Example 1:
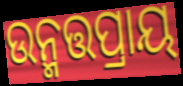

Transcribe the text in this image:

ଉନ୍ମତ୍ତପ୍ରାୟ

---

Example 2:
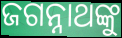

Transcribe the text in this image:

ଜଗନ୍ନାଥଙ୍କୁ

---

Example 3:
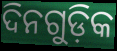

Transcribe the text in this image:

ଦିନଗୁଡ଼ିକ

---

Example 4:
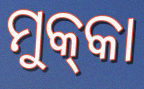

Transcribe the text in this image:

ମୁକ୍‌କା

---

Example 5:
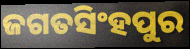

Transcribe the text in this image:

ଜଗତସିଂହପୁର